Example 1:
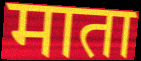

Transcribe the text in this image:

माता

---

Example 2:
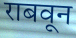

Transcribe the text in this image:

राबवून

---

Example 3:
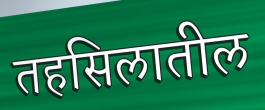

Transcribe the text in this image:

तहसिलातील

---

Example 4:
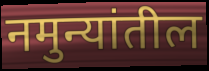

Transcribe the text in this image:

नमुन्यांतील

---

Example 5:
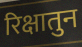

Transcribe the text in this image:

रिक्षातुन